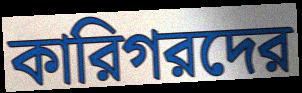
কারিগরদের